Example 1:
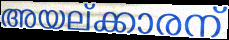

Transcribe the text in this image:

അയല്ക്കാരന്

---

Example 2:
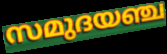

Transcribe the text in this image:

സമുദയഞ്ച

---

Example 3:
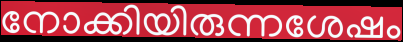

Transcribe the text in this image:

നോക്കിയിരുന്നശേഷം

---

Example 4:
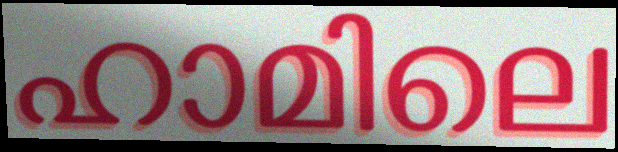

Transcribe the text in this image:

ഹാമിലെ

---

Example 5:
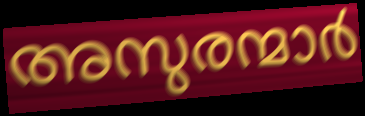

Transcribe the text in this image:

അസുരന്മാർ